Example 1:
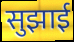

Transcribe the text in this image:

सुझाई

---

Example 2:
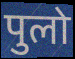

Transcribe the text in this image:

पुलो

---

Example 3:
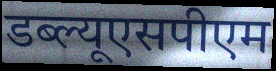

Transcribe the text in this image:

डब्ल्यूएसपीएम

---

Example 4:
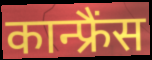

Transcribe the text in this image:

कान्फ्रैंस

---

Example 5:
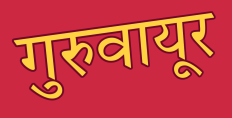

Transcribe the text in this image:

गुरुवायूर